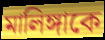
মালিঙ্গাকে